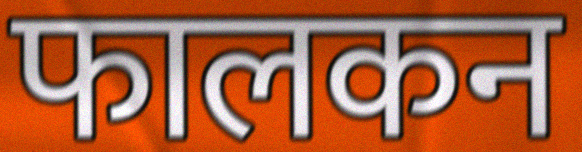
फालकन